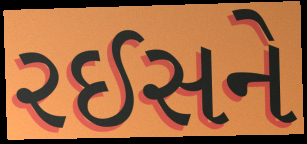
રઈસને